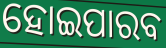
ହୋଇପାରବ